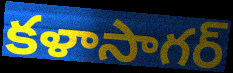
కళాసాగర్